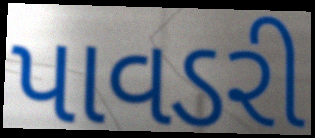
પાવડરી